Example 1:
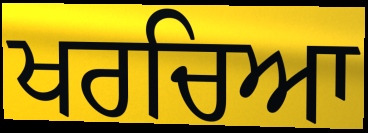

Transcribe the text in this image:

ਖਰਚਿਆ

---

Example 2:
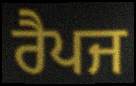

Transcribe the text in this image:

ਰੈਪਜ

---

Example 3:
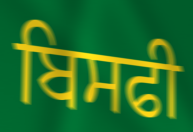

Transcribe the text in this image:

ਬਿਸਫੀ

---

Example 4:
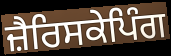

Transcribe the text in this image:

ਜ਼ੈਰਿਸਕੇਪਿੰਗ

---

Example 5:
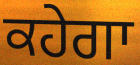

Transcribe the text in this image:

ਕਹੇਗਾ